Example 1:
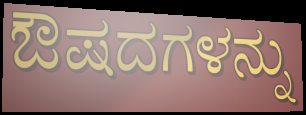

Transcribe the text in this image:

ಔಷದಗಳನ್ನು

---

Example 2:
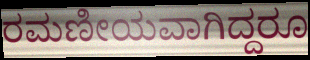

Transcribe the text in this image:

ರಮಣೀಯವಾಗಿದ್ದರೂ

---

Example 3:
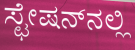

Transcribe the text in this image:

ಸ್ಟೇಷನ್‌ನಲ್ಲಿ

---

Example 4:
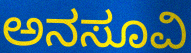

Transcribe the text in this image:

ಅನಸೂವಿ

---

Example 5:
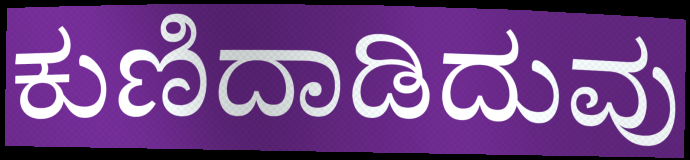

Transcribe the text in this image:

ಕುಣಿದಾಡಿದುವು